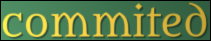
commited